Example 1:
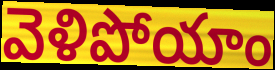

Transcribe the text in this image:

వెళిపోయాం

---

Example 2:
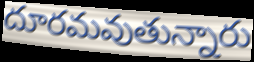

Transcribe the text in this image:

దూరమవుతున్నారు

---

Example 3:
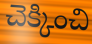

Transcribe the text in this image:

చెక్కించి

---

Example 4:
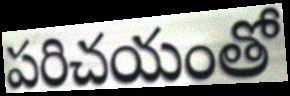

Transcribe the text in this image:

పరిచయంతో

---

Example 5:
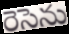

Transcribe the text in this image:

రెసెను